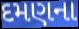
દમણના